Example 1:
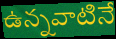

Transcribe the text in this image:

ఉన్నవాటినే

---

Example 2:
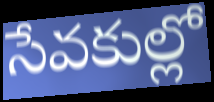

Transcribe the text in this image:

సేవకుల్లో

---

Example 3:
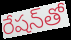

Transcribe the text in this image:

రేషన్‌తో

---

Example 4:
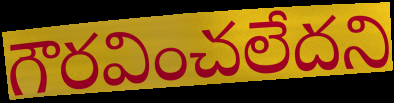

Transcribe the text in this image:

గౌరవించలేదని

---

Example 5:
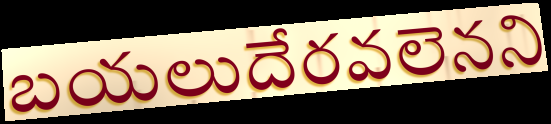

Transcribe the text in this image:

బయలుదేరవలెనని